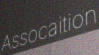
Assocaition